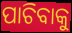
ପାଚିବାକୁ